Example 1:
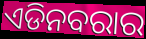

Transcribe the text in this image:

ଏଡିନବରାର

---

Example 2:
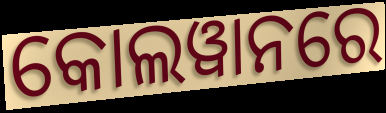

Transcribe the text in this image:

କୋଲୱାନରେ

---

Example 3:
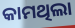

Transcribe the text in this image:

କାମଥିଲା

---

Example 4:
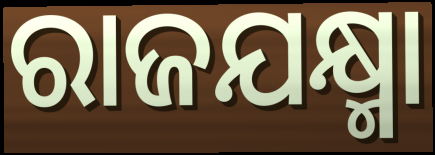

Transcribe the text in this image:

ରାଜଯକ୍ଷ୍ମା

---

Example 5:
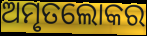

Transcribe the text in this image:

ଅମୃତଲୋକର